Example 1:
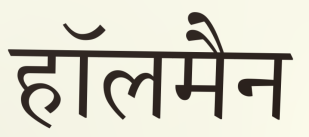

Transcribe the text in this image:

हॉलमैन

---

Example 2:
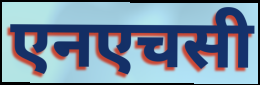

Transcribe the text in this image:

एनएचसी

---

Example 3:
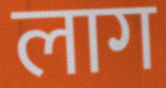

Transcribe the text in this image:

लाग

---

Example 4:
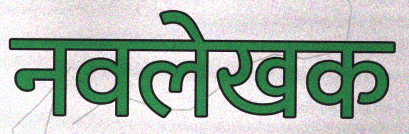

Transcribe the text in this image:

नवलेखक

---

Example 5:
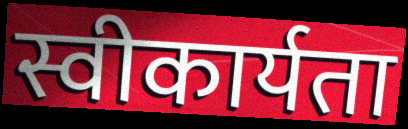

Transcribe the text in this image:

स्वीकार्यता